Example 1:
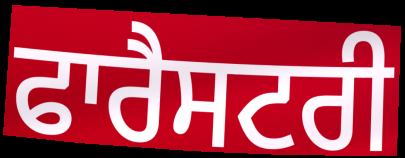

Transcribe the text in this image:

ਫਾਰੈਸਟਰੀ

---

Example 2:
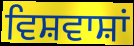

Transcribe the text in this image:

ਵਿਸ਼ਵਾਸ਼ਾਂ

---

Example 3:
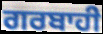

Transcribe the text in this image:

ਗਰਬਾਹੀ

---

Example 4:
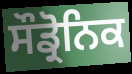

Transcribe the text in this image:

ਸੌਡ੍ਰੋਨਿਕ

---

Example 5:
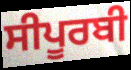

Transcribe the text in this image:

ਸੀਪੂਰਬੀ